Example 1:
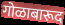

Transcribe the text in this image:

गोळाबारूद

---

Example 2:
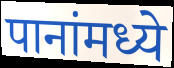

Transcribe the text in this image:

पानांमध्ये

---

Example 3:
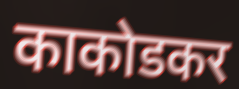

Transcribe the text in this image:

काकोडकर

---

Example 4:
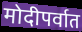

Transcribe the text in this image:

मोदीपर्वात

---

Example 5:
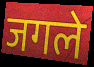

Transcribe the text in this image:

जगले